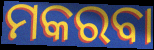
ମକରବା